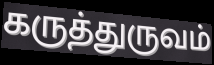
கருத்துருவம்